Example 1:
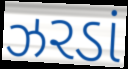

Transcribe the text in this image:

ઝરડાં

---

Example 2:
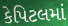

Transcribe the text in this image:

કેપિટલમાં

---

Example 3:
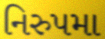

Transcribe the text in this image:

નિરુપમા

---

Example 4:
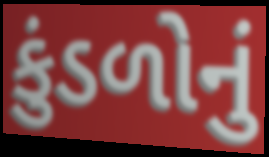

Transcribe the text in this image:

કુંડળોનું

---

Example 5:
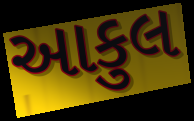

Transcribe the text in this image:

આકુલ